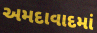
અમદાવાદમાં